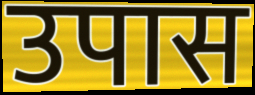
उपास